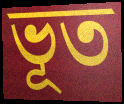
ভূত